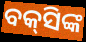
ବକ୍‌ସିଙ୍କ